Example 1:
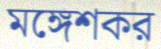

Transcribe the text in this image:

মঙ্গেশকর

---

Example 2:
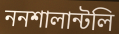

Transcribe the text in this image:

ননশালান্টলি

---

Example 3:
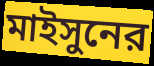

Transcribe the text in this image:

মাইসুনের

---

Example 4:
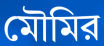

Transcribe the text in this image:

মৌমির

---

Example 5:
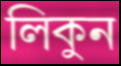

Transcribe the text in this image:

লিকুন